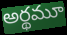
అర్థమూ